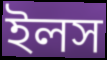
ইলস